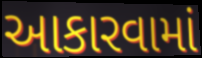
આકારવામાં